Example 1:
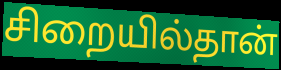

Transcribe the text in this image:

சிறையில்தான்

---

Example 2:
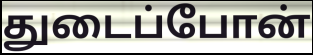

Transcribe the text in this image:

துடைப்போன்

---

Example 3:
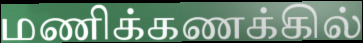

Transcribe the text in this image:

மணிக்கணக்கில்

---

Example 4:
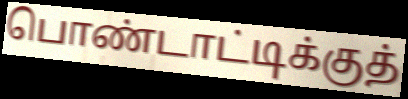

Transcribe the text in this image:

பொண்டாட்டிக்குத்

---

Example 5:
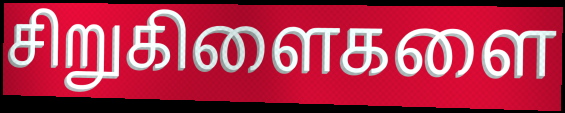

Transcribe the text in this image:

சிறுகிளைகளை